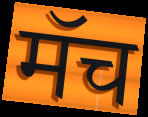
मॅच